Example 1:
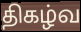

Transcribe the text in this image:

திகழ்வ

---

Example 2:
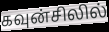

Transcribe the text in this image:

கவுன்சிலில்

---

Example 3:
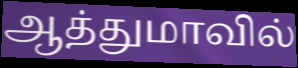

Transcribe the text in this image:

ஆத்துமாவில்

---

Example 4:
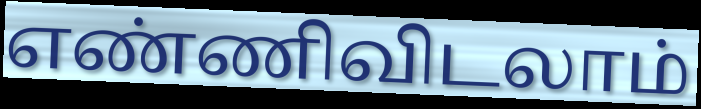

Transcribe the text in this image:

எண்ணிவிடலாம்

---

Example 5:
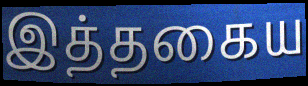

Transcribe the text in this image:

இத்தகைய